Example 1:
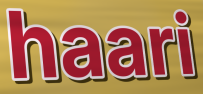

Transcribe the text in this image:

haari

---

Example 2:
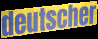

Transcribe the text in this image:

deutscher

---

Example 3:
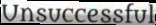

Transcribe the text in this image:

Unsuccessful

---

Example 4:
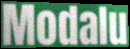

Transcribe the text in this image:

Modalu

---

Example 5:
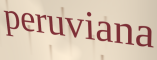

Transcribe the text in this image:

peruviana